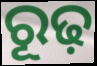
ରୂଢ଼